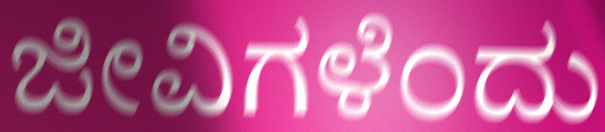
ಜೀವಿಗಳೆಂದು